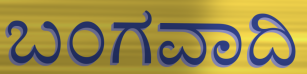
ಬಂಗವಾದಿ